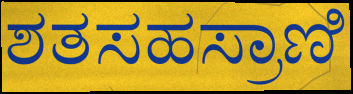
ಶತಸಹಸ್ರಾಣಿ